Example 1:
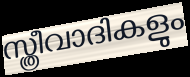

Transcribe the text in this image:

സ്ത്രീവാദികളും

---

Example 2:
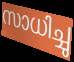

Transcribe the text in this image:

സാധിച്ചു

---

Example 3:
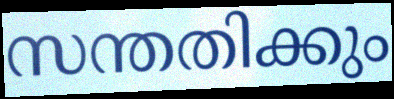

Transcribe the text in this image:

സന്തതിക്കും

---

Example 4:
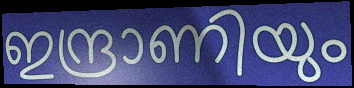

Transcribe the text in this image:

ഇന്ദ്രാണിയും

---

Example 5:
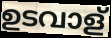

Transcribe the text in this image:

ഉടവാള്